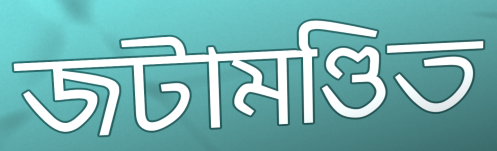
জটামণ্ডিত